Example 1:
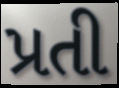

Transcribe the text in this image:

પ્રતી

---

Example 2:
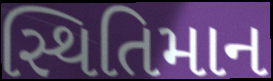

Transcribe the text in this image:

સ્થિતિમાન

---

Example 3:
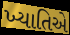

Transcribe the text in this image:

ખ્યાતિએ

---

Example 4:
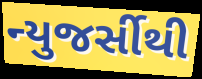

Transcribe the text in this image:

ન્યુજર્સીથી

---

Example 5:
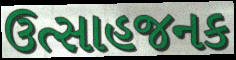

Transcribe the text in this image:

ઉત્સાહજનક